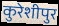
कुरेशीपुर